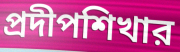
প্রদীপশিখার